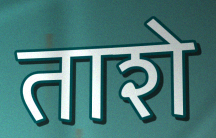
ताशे